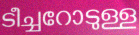
ടീച്ചറോടുള്ള